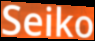
Seiko